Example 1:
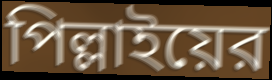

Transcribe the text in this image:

পিল্লাইয়ের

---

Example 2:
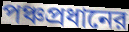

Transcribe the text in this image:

পঞ্চপ্রধানের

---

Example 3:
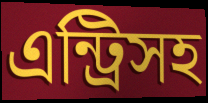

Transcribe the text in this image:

এন্ট্রিসহ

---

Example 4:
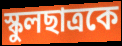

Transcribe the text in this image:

স্কুলছাত্রকে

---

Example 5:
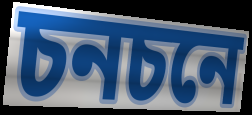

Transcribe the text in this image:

চনচনে